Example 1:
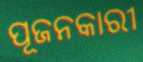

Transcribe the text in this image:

ପୂଜନକାରୀ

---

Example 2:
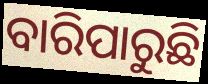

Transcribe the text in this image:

ବାରିପାରୁଛି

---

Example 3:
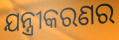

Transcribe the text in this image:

ଯନ୍ତ୍ରୀକରଣର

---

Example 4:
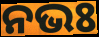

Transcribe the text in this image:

ନଭଃ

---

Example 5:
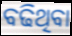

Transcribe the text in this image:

ବଢିଥିବା